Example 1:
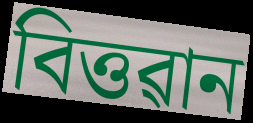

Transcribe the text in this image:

বিত্তৱান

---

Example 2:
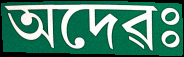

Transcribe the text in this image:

অদেৱঃ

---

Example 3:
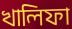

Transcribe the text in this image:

খালিফা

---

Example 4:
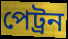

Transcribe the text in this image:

পেট্ৰন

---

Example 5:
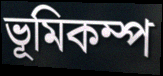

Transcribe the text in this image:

ভূমিকম্প